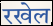
रखेल